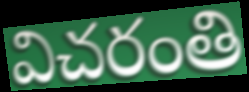
విచరంతి